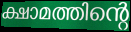
ക്ഷാമത്തിന്റെ